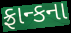
ફ્રાન્કના